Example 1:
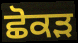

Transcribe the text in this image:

ਛੋਕੜ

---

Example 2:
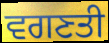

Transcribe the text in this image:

ਵਗਣਤੀ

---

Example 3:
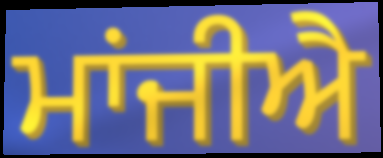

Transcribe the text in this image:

ਮਾਂਜੀਐ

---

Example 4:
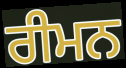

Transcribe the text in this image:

ਰੀਮਨ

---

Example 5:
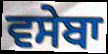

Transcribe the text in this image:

ਵਸੇਬਾ